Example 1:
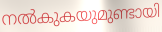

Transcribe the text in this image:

നൽകുകയുമുണ്ടായി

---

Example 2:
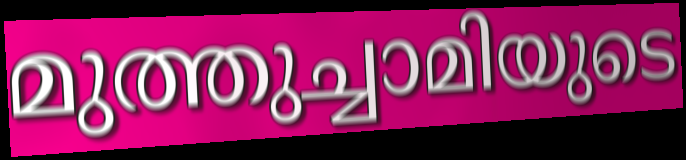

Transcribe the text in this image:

മുത്തുച്ചാമിയുടെ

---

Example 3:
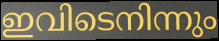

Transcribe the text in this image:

ഇവിടെനിന്നും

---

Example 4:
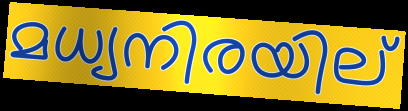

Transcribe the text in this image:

മധ്യനിരയില്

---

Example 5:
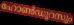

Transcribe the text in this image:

ഹോൺഡുറസും